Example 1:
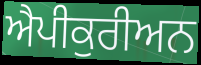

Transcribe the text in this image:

ਐਪੀਕੁਰੀਅਨ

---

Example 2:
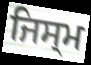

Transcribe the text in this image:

ਜਿਸ੍ਮ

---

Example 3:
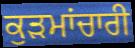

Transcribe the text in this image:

ਕੁੜਮਾਂਚਾਰੀ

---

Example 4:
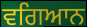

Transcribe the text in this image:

ਵਗਿਆਨ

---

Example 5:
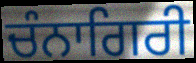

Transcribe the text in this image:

ਚੰਨਾਗਿਰੀ